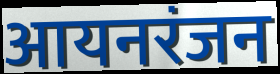
आयनरंजन